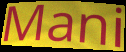
Mani